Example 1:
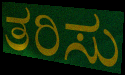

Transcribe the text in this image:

ತರಿಸು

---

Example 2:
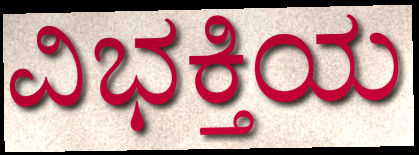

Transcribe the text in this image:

ವಿಭಕ್ತಿಯ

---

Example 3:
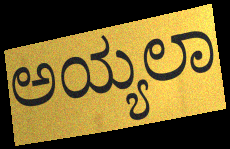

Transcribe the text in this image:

ಅಯ್ಯಲಾ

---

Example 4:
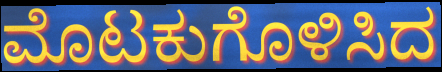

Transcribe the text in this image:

ಮೊಟಕುಗೊಳಿಸಿದ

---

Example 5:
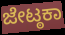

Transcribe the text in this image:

ಜೇಟ್ಠಕಾ